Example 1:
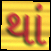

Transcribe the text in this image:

થાં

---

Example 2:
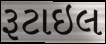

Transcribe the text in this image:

રૂટાઇલ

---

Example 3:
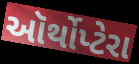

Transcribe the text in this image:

ઑર્થોપ્ટેરા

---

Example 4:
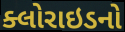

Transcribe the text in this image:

ક્લોરાઇડનો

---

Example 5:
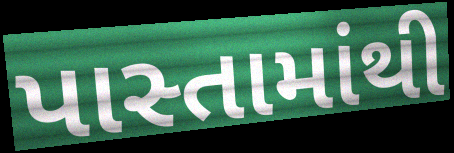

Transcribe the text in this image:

પાસ્તામાંથી